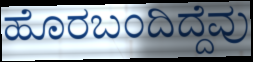
ಹೊರಬಂದಿದ್ದೆವು